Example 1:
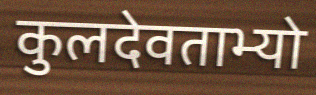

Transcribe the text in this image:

कुलदेवताभ्यो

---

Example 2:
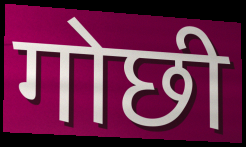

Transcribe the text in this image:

गोछी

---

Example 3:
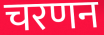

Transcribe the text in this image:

चरणन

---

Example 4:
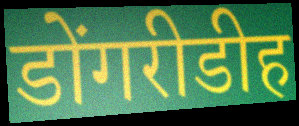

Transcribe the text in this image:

डोंगरीडीह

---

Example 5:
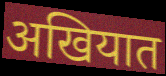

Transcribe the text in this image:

अखियात